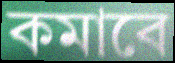
কমাবে